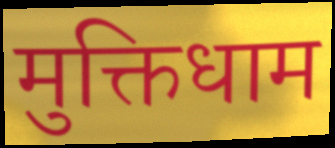
मुक्तिधाम